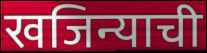
खजिन्याची